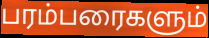
பரம்பரைகளும்